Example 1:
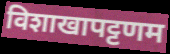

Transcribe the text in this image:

विशाखापट्टणम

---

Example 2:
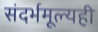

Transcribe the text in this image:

संदर्भमूल्यही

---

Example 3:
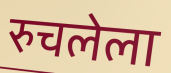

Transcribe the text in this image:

रुचलेला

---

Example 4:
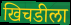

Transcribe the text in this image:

खिचडीला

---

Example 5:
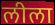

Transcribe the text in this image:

लीला